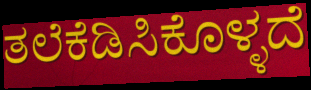
ತಲೆಕೆಡಿಸಿಕೊಳ್ಳದೆ